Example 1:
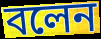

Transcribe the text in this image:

বলেন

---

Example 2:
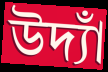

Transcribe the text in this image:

উদ্যাঁ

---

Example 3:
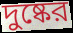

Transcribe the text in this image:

দুষ্কের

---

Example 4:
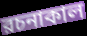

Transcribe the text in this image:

রচনাকাল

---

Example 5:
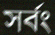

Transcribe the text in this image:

সর্বং